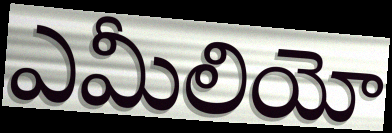
ఎమీలియో